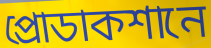
প্রোডাকশানে